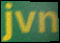
jvn